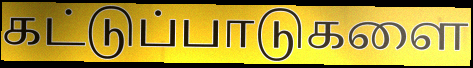
கட்டுப்பாடுகளை